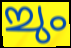
ച്ചും